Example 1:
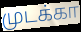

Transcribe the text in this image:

முடக்கா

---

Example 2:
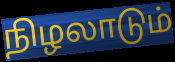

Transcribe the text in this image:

நிழலாடும்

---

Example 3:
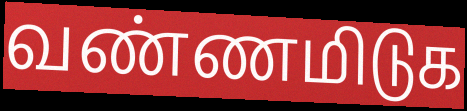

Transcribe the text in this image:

வண்ணமிடுக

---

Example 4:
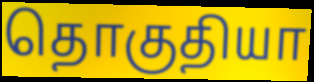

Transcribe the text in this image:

தொகுதியா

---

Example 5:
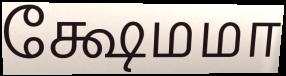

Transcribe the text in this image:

க்ஷேமமா